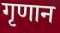
गृणान